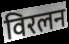
विरलन